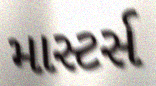
માસ્ટર્સ